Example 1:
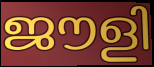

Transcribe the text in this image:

ജൗളി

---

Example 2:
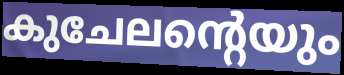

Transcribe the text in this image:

കുചേലന്റെയും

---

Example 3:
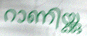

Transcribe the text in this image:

റാണിയ്ക്കു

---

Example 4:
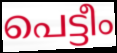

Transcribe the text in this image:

പെട്ടീം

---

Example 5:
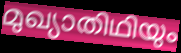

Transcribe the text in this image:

മുഖ്യാതിഥിയും